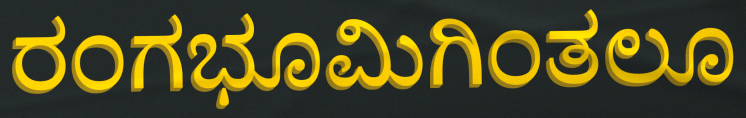
ರಂಗಭೂಮಿಗಿಂತಲೂ